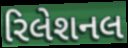
રિલેશનલ